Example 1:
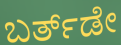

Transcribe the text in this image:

ಬರ್ತ್‌ಡೇ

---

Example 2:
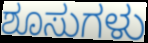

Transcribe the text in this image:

ಶೂಸುಗಳು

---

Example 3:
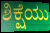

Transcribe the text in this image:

ಶಿಕ್ಷೆಯು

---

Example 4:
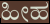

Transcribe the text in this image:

ಹೀಹ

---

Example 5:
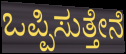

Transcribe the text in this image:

ಒಪ್ಪಿಸುತ್ತೇನೆ